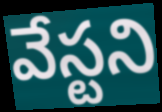
వేస్టని